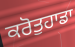
ਕਰੋਤੁਹਾਡਾ